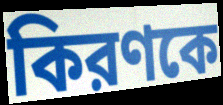
কিরণকে